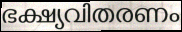
ഭക്ഷ്യവിതരണം